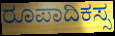
ರೂಪಾದಿಕಸ್ಸ